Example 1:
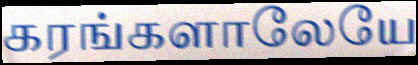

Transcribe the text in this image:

கரங்களாலேயே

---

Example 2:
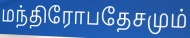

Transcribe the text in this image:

மந்திரோபதேசமும்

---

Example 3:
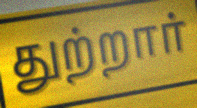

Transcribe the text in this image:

துற்றார்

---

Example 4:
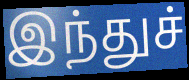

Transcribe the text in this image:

இந்துச்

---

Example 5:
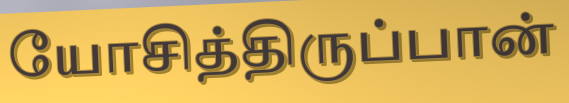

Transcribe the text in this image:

யோசித்திருப்பான்